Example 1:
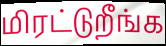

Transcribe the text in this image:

மிரட்டுறீங்க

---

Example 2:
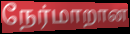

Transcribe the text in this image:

நேர்மாறான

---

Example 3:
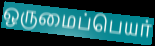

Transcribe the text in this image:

ஒருமைப்பெயர்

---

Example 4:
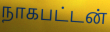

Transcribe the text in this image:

நாகபட்டன்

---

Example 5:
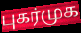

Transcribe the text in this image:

புகர்முக